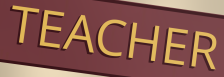
TEACHER